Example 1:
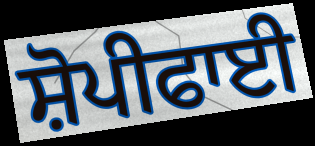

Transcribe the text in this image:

ਸ਼ੋਪੀਫਾਈ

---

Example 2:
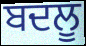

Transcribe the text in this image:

ਬਦਲੂ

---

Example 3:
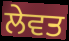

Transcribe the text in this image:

ਲੇਵਤ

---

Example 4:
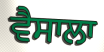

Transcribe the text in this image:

ਵੈਸਾਲਾ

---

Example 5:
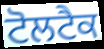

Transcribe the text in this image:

ਟੋਲਟੈਕ